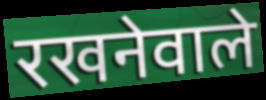
रखनेवाले